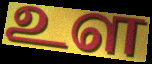
உள